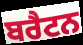
ਬਰੈਟਨ